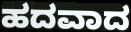
ಹದವಾದ